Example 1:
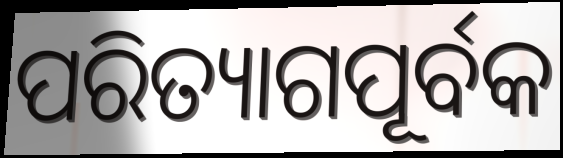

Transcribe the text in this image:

ପରିତ୍ୟାଗପୂର୍ବକ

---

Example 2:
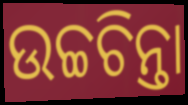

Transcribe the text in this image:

ଉଚ୍ଚଚିନ୍ତା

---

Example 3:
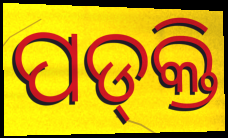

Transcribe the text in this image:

ପଡ୍‌କ୍ତି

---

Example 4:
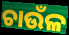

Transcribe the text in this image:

ଚାଉଁଳ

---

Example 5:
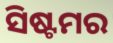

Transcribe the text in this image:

ସିଷ୍ଟମର